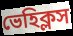
ভেহিক্লস